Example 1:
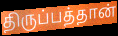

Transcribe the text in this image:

திருப்பத்தான்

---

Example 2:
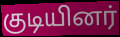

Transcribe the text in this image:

குடியினர்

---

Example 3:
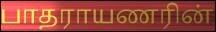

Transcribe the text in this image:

பாதராயணரின்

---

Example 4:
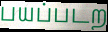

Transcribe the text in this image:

பயப்படற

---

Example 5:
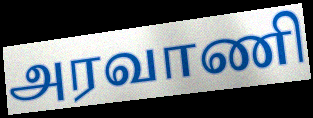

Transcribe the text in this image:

அரவாணி